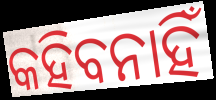
କହିବନାହିଁ